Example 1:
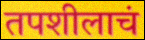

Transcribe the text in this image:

तपशीलाचं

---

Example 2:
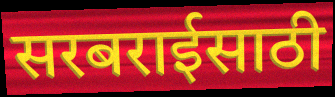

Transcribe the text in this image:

सरबराईसाठी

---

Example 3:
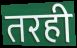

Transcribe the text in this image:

तरही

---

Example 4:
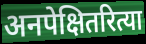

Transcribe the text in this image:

अनपेक्षितरित्या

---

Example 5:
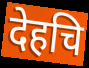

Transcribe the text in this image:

देहचि